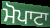
ਮੋਪਾਟਾ